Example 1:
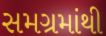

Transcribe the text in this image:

સમગ્રમાંથી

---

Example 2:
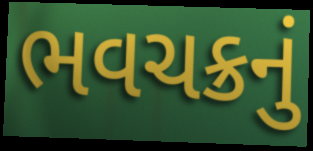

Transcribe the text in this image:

ભવચક્રનું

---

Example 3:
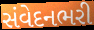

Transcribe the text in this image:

સંવેદનભરી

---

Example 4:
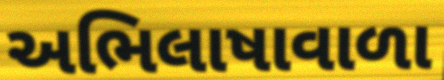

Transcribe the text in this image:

અભિલાષાવાળા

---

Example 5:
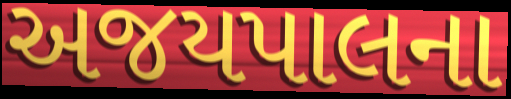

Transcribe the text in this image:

અજયપાલના